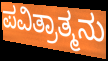
ಪವಿತ್ರಾತ್ಮನು